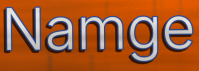
Namge